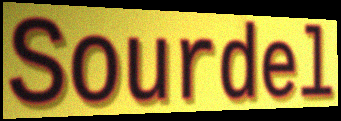
Sourdel